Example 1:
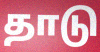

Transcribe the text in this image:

தாடு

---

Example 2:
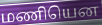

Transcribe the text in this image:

மணியென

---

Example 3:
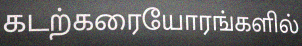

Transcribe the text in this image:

கடற்கரையோரங்களில்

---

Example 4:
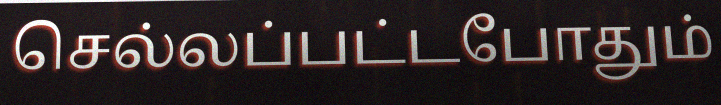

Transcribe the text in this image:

செல்லப்பட்டபோதும்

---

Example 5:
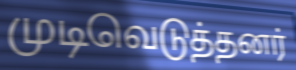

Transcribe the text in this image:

முடிவெடுத்தனர்